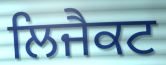
ਲਿਜੈਕਟ